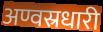
अण्वस्रधारी